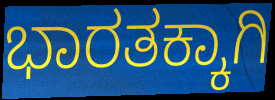
ಭಾರತಕ್ಕಾಗಿ